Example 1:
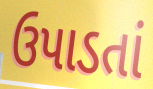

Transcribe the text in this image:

ઉપાડતાં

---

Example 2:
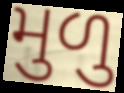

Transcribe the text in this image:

મુળુ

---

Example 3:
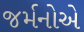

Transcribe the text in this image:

જર્મનોએ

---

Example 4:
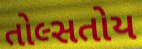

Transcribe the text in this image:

તોલ્સતોય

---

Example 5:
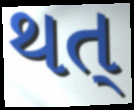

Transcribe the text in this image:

થત્